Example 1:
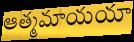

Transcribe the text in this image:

ఆత్మమాయయా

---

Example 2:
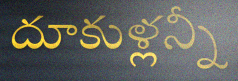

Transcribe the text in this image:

దూకుళ్లన్నీ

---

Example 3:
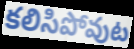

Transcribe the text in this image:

కలిసిపోవుట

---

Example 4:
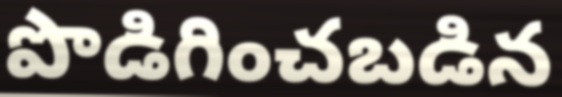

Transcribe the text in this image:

పొడిగించబడిన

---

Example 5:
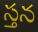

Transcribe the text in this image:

స్తన